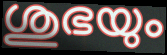
ശുഭയും